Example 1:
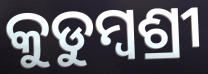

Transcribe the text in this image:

କୁଡୁମ୍ବଶ୍ରୀ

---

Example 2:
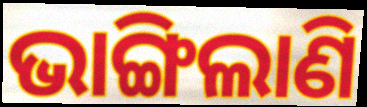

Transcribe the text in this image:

ଭାଙ୍ଗିଲାଣି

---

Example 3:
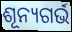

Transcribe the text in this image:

ଶୂନ୍ୟଗର୍ଭ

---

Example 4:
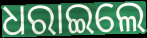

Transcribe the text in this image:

ଧରାଇଲେ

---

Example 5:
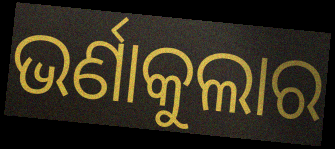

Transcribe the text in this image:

ଭର୍ଣାକୁଲାର